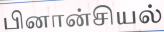
பினான்சியல்